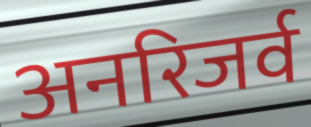
अनरिजर्व